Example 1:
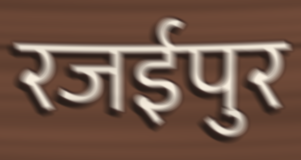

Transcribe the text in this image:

रजईपुर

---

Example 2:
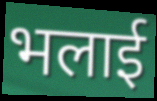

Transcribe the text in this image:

भलाई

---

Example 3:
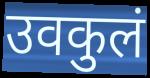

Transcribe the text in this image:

उवकुलं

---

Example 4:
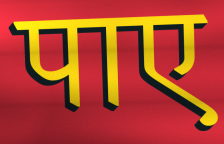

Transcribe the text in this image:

पाए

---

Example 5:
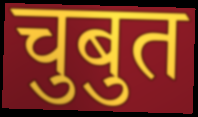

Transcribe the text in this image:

चुबुत